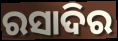
ରସାଦିର